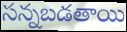
సన్నబడతాయి